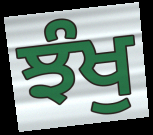
ਝੰਖੁ